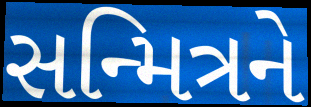
સન્મિત્રને